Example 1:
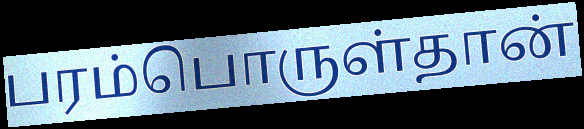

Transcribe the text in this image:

பரம்பொருள்தான்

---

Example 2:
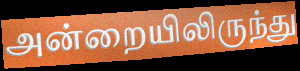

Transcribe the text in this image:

அன்றையிலிருந்து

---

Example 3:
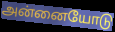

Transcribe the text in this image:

அன்னையோடு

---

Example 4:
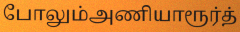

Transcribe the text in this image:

போலும்அணியாரூர்த்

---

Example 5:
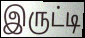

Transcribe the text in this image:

இருட்டி